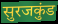
सुरजकुंड